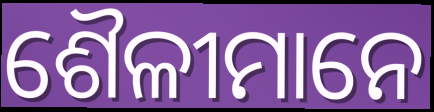
ଶୈଳୀମାନେ